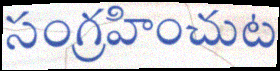
సంగ్రహించుట